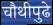
चौथीपुढे